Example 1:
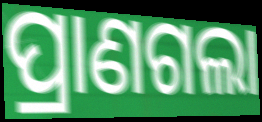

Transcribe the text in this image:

ପ୍ରାଣଗଲା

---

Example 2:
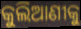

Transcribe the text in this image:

କୁଲିଆଣୀକୁ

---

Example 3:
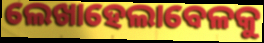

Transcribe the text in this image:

ଲେଖାହେଲାବେଳକୁ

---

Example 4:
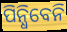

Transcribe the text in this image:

ପିନ୍ଧିବେନି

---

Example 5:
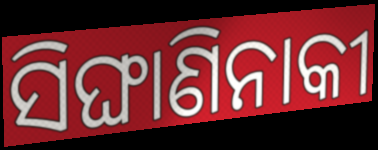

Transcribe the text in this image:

ସିଙ୍ଘାଣିନାକୀ